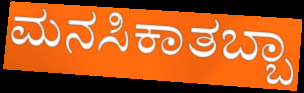
ಮನಸಿಕಾತಬ್ಬಾ